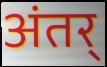
अंतर्